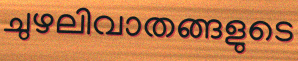
ചുഴലിവാതങ്ങളുടെ